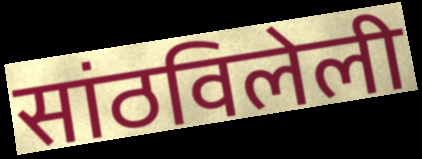
सांठविलेली